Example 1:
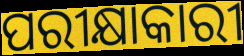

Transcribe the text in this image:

ପରୀକ୍ଷାକାରୀ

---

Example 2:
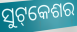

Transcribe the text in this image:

ସୁଟ୍‌କେଶର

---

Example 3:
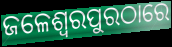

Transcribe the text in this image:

ଜଳେଶ୍ୱରପୁରଠାରେ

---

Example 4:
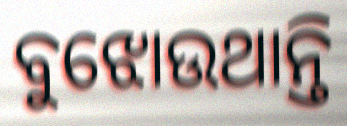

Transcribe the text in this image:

ବୁଝୋଉଥାନ୍ତି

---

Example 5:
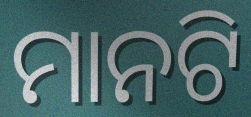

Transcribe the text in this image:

ମାନଟି